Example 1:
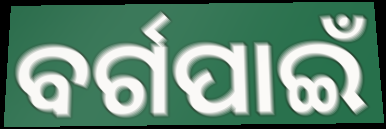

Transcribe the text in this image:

ବର୍ଗପାଇଁ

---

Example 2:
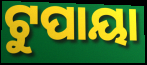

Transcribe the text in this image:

ଟୁପାୟା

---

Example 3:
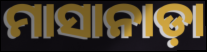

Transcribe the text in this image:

ମାସାନାଡ଼ା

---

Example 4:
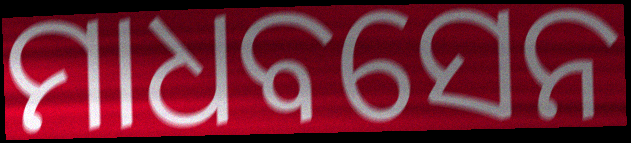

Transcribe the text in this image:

ମାଧବସେନ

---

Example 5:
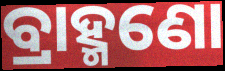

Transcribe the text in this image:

ବ୍ରାହ୍ମଣୋ